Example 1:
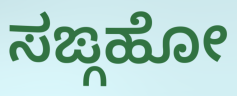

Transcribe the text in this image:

ಸಙ್ಗಹೋ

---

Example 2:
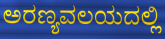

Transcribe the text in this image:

ಅರಣ್ಯವಲಯದಲ್ಲಿ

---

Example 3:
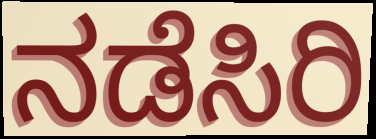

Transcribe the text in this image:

ನಡೆಸಿರಿ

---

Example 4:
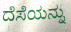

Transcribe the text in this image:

ದೆಸೆಯನ್ನು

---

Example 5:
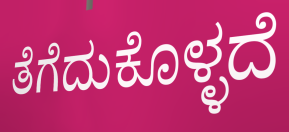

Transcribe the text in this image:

ತೆಗೆದುಕೊಳ್ಳದೆ